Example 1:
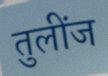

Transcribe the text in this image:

तुलींज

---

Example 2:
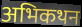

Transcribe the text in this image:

अभिकथन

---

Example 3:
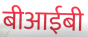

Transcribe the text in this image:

बीआईबी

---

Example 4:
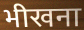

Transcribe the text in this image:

भीखना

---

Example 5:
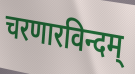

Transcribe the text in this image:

चरणारविन्दम्